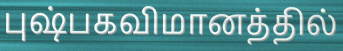
புஷ்பகவிமானத்தில்